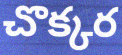
చొక్కర